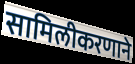
सामिलीकरणाने